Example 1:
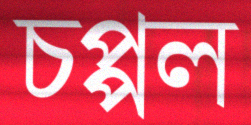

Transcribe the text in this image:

চপ্পল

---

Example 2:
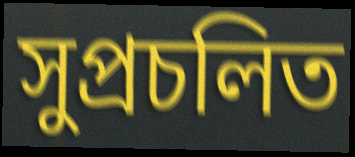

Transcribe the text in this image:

সুপ্রচলিত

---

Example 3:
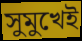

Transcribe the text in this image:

সুমুখেই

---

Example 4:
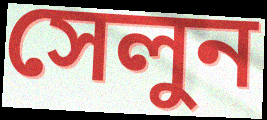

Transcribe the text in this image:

সেলুন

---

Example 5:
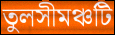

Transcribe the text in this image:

তুলসীমঞ্চটি